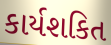
કાર્યશકિત